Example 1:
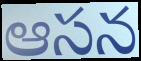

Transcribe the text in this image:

ఆసన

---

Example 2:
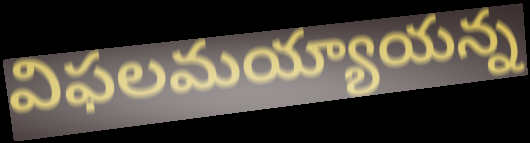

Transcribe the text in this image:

విఫలమయ్యాయన్న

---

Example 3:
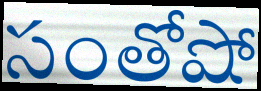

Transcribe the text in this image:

సంతోషో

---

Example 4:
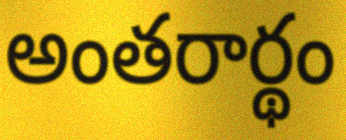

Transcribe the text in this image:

అంతరార్థం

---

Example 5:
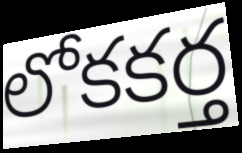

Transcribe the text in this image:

లోకకర్త